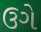
ઉગે